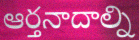
ఆర్తనాదాల్ని